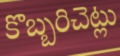
కొబ్బరిచెట్లు